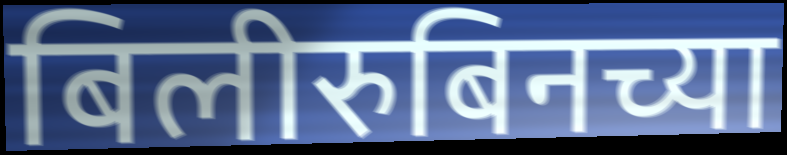
बिलीरुबिनच्या